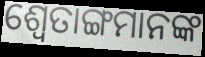
ଶ୍ଵେତାଙ୍ଗମାନଙ୍କ